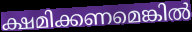
ക്ഷമിക്കണമെങ്കിൽ